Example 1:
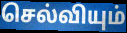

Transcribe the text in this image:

செல்வியும்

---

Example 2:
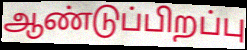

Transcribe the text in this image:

ஆண்டுப்பிறப்பு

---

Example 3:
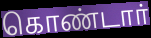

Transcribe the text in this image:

கொண்டார்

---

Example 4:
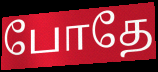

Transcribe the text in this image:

போதே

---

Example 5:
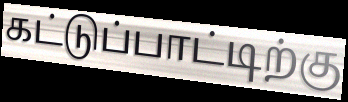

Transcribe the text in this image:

கட்டுப்பாட்டிற்கு